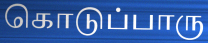
கொடுப்பாரு